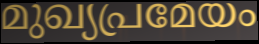
മുഖ്യപ്രമേയം